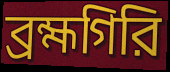
ব্রহ্মগিরি